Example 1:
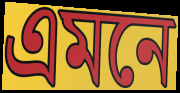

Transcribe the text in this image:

এমনে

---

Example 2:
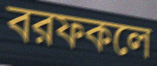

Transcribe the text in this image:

বরফকলে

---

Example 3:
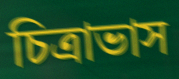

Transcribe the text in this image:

চিত্রাভাস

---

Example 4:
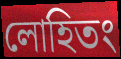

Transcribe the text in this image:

লোহিতং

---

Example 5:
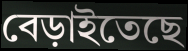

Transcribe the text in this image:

বেড়াইতেছে